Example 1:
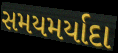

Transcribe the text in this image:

સમયમર્યાદા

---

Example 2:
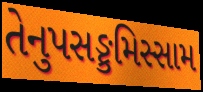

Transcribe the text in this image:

તેનુપસઙ્કમિસ્સામ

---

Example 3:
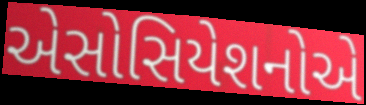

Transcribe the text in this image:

એસોસિયેશનોએ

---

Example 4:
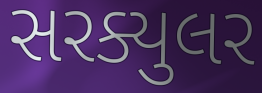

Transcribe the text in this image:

સરક્યુલર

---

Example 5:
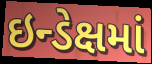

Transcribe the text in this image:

ઇન્ડેક્ષમાં